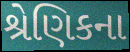
શ્રેણિકના